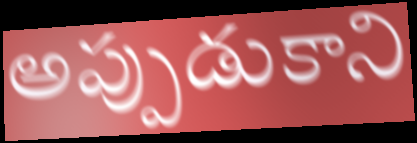
అప్పుడుకాని